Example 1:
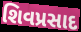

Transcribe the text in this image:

શિવપ્રસાદ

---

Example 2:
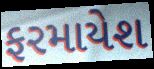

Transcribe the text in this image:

ફરમાયેશ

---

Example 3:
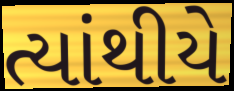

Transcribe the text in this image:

ત્યાંથીયે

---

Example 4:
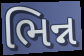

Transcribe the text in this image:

ભિન્ન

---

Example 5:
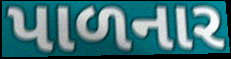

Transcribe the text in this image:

પાળનાર